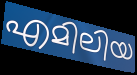
എമിലിയ